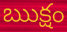
ఋక్షం